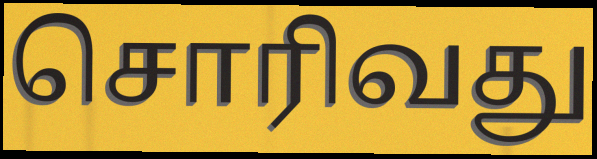
சொரிவது